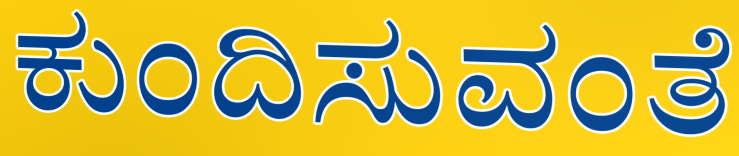
ಕುಂದಿಸುವಂತೆ